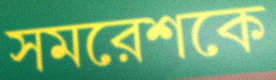
সমরেশকে